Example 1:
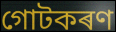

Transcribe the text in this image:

গোটকৰণ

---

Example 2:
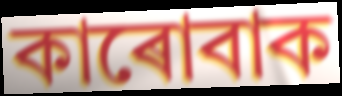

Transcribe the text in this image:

কাৰোবাক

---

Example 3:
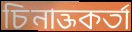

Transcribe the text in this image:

চিনাক্তকৰ্তা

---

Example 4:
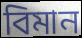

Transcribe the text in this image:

বিমান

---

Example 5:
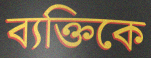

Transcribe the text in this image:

ব্যক্তিকে